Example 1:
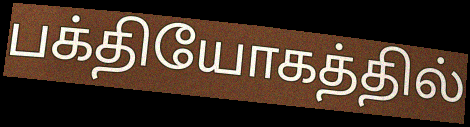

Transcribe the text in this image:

பக்தியோகத்தில்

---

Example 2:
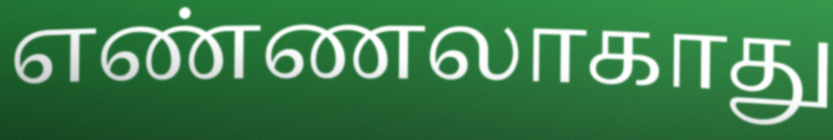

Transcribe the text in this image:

எண்ணலாகாது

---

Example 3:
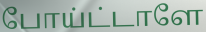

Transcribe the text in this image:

போய்ட்டாளே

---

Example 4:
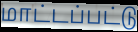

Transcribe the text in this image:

மாட்டப்பட்டு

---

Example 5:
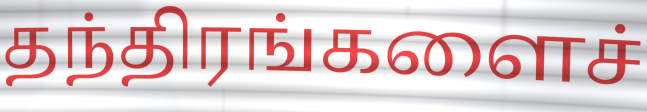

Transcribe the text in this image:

தந்திரங்களைச்